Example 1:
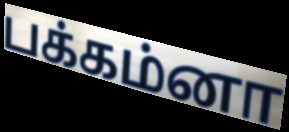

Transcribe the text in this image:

பக்கம்னா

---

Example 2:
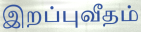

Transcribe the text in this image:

இறப்புவீதம்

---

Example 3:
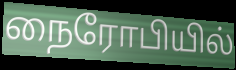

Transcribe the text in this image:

நைரோபியில்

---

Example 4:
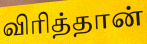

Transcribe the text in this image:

விரித்தான்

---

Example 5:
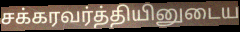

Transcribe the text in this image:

சக்கரவர்த்தியினுடைய